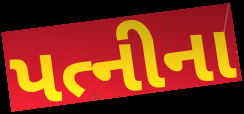
પત્નીના